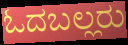
ಓದಬಲ್ಲರು